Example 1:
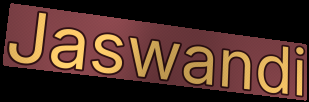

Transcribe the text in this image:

Jaswandi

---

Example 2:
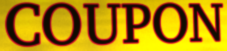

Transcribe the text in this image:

COUPON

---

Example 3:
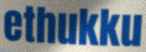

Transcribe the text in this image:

ethukku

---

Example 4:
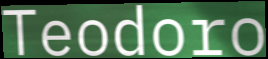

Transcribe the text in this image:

Teodoro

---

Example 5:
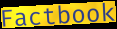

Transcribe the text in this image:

Factbook